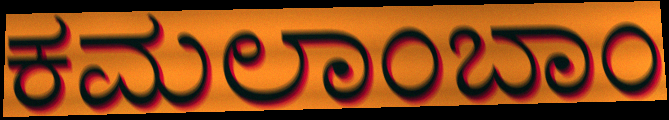
ಕಮಲಾಂಬಾಂ